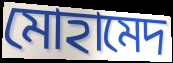
মোহামেদ